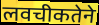
लवचीकतेने